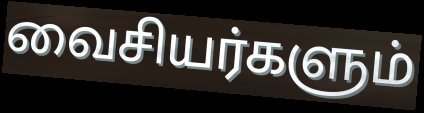
வைசியர்களும்